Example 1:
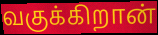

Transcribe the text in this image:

வகுக்கிறான்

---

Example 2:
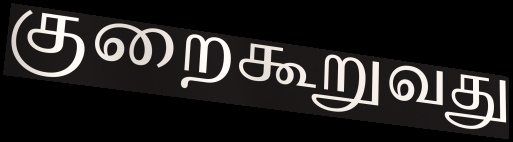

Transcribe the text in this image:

குறைகூறுவது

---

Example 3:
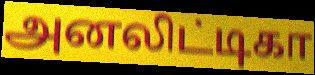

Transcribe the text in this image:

அனலிட்டிகா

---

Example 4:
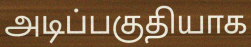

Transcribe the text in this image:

அடிப்பகுதியாக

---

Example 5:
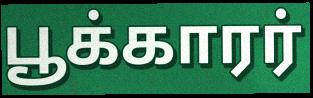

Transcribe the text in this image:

பூக்காரர்